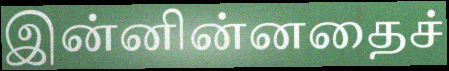
இன்னின்னதைச்